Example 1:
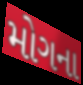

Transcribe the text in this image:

મોગના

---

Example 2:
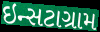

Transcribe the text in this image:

ઇન્સટાગ્રામ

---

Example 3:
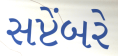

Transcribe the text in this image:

સપ્ટેંબરે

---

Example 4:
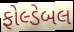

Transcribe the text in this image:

ફોલ્ડેબલ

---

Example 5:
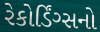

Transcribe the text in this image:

રેકોર્ડિંગ્સનો